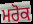
ਮਰੋਕ